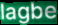
lagbe